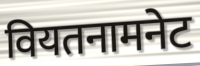
वियतनामनेट